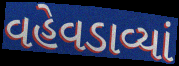
વહેવડાવ્યાં